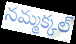
నమ్మక్కల్